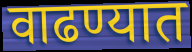
वाढण्यात